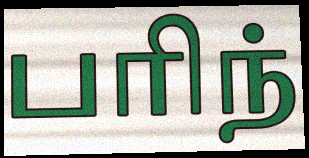
பரிந்